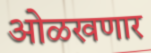
ओळखणार